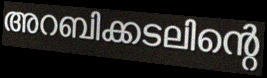
അറബിക്കടലിന്റെ